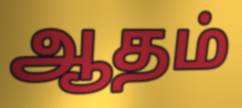
ஆதம்